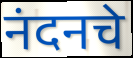
नंदनचे